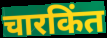
चारकिंत